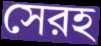
সেরহ